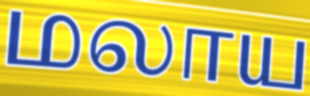
மலாய